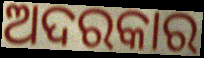
ଅଦରକାର